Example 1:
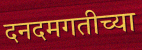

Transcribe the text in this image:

दनदमगतीच्या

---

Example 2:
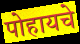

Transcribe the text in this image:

पोहायचे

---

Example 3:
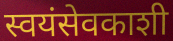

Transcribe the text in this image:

स्वयंसेवकाशी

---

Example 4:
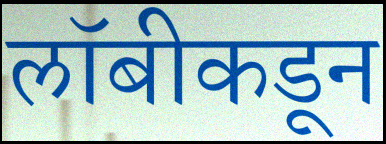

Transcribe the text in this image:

लॉबीकडून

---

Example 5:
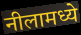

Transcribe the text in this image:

नीलामध्ये